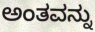
ಅಂತವನ್ನು